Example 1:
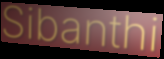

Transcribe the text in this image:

Sibanthi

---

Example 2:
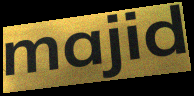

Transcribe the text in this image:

majid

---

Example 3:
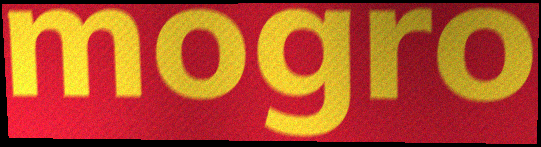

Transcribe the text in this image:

mogro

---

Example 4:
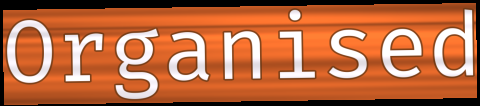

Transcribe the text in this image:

Organised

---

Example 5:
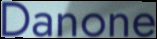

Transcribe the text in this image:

Danone